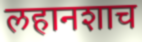
लहानशाच